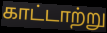
காட்டாற்று